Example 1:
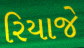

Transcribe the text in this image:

રિયાજે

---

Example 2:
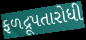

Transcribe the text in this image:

ફળદ્રૂપતારોધી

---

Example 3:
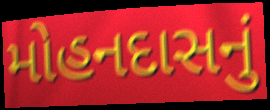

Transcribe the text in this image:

મોહનદાસનું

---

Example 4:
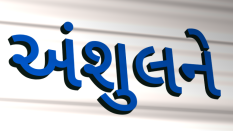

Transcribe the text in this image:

અંશુલને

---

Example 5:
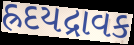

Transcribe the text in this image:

હ્રદયદ્રાવક